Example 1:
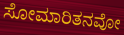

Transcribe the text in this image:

ಸೋಮಾರಿತನವೋ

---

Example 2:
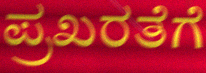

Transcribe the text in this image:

ಪ್ರಖರತೆಗೆ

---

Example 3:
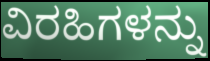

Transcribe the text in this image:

ವಿರಹಿಗಳನ್ನು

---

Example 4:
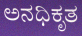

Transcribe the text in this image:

ಅನಧಿಕೃತ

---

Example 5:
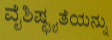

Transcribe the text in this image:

ವೈಶಿಷ್ಟ್ಯತೆಯನ್ನು